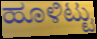
ಹೂಳಿಟ್ಟು